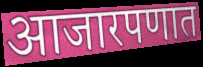
आजारपणात